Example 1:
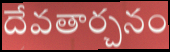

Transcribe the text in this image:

దేవతార్చనం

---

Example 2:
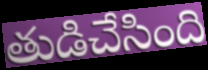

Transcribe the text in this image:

తుడిచేసింది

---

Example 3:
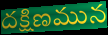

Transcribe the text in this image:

దక్షిణమున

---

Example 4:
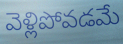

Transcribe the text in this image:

వెళ్లిపోవడమే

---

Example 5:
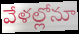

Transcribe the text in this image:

వేళల్లోనూ